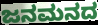
ಜನಮನದ